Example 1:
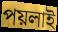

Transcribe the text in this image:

পয়লাই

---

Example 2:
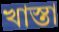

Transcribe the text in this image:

খাস্তা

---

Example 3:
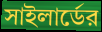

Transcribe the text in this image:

সাইলার্ডের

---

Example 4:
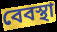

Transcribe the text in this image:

বেবস্থা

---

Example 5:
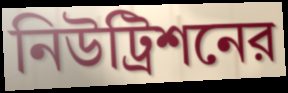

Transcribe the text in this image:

নিউট্রিশনের